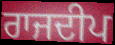
ਰਾਜਦੀਪ